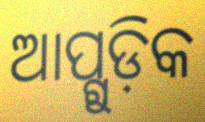
ଆପ୍ଗୁଡ଼ିକ